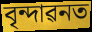
বৃন্দাৱনত